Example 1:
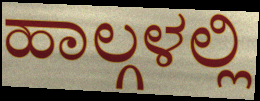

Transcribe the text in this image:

ಹಾಲ್ಗಳಲ್ಲಿ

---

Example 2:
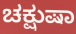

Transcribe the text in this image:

ಚಕ್ಷುಷಾ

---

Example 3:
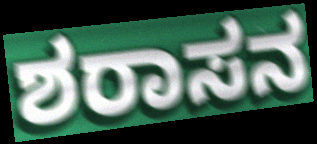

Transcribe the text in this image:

ಶರಾಸನ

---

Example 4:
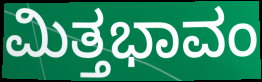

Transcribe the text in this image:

ಮಿತ್ತಭಾವಂ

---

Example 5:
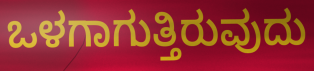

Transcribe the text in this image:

ಒಳಗಾಗುತ್ತಿರುವುದು